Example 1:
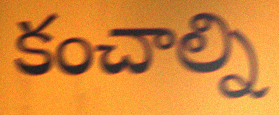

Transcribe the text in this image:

కంచాల్ని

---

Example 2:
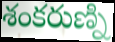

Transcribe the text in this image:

శంకరుణ్ని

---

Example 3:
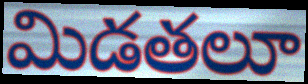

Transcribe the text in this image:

మిడతలూ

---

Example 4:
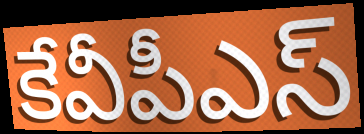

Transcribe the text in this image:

కేవీపీఎస్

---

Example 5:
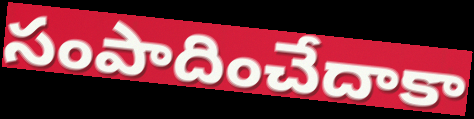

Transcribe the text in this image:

సంపాదించేదాకా